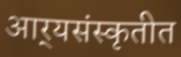
आर्यसंस्कृतीत